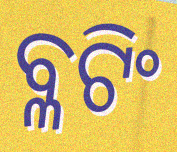
ବ୍ଳଟିଂ